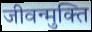
जीवन्मुक्ति